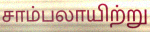
சாம்பலாயிற்று